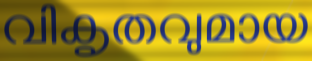
വികൃതവുമായ